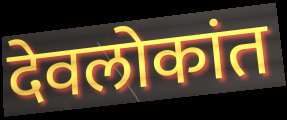
देवलोकांत